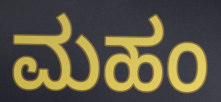
ಮಹಂ